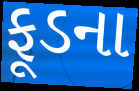
ફૂડના